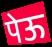
पेऊ